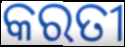
କରତୀ